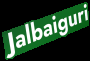
Jalbaiguri